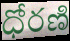
ధోరణి